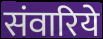
संवारिये